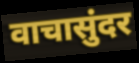
वाचासुंदर